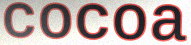
cocoa